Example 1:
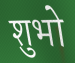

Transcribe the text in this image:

शुभो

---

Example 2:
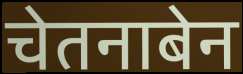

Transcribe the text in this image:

चेतनाबेन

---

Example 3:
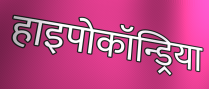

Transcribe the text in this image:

हाइपोकॉन्ड्रिया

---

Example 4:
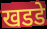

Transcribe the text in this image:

खडडे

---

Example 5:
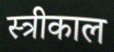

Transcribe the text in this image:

स्त्रीकाल